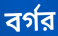
বর্গর